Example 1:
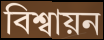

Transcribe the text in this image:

বিশ্বায়ন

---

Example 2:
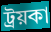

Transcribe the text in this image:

ট্রয়কা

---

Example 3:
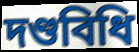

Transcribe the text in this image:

দণ্ডবিধি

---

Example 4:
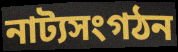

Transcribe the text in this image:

নাট্যসংগঠন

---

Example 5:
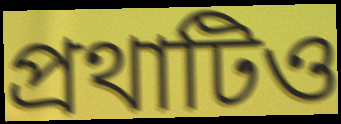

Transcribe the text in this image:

প্রথাটিও